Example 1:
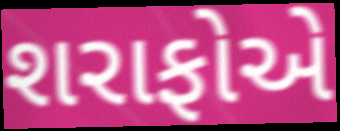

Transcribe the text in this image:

શરાફોએ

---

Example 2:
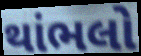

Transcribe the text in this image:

થાંભલો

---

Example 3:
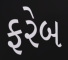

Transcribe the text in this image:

ફરેબ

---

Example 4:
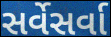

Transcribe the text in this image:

સર્વેસર્વા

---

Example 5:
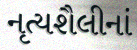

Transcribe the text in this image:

નૃત્યશૈલીનાં